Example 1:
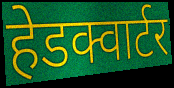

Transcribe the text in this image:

हेडक्वार्टर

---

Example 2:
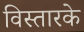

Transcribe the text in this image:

विस्तारके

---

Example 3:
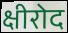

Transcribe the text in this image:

क्षीरोद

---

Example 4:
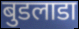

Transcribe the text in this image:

बुडलाडा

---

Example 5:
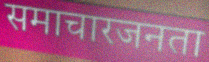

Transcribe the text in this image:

समाचारजनता